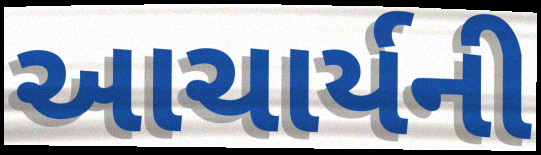
આચાર્યની